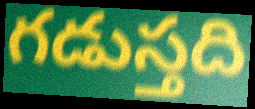
గడుస్తది